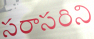
సరాసరిని